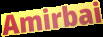
Amirbai